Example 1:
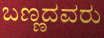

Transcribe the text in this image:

ಬಣ್ಣದವರು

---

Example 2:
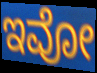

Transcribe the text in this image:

ಇವೋ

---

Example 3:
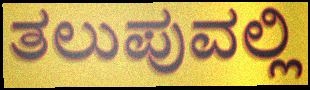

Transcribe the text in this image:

ತಲುಪುವಲ್ಲಿ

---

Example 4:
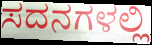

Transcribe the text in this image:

ಸದನಗಳಲ್ಲಿ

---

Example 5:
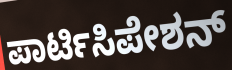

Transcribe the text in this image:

ಪಾರ್ಟಿಸಿಪೇಶನ್